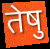
तेषु